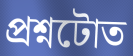
প্ৰশ্নটোত